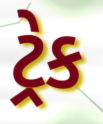
ટ્રેક